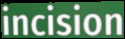
incision